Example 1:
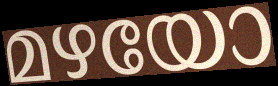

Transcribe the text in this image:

മഴയോ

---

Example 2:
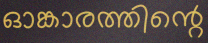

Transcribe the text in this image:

ഓങ്കാരത്തിന്റെ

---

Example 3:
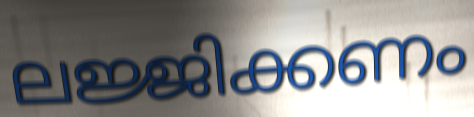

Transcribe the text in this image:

ലജ്ജിക്കണം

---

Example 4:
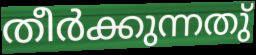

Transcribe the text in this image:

തീർക്കുന്നതു്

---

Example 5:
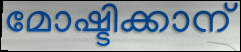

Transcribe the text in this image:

മോഷ്ടിക്കാന്